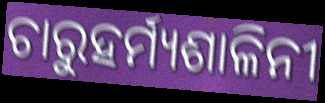
ଚାରୁହର୍ମ୍ୟଶାଳିନୀ